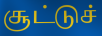
சூட்டுச்